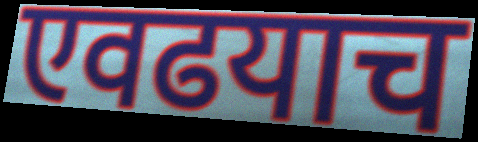
एवढयाच